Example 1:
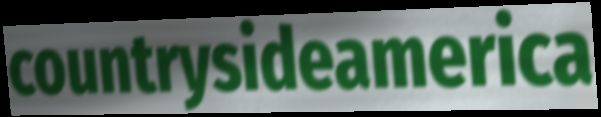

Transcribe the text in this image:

countrysideamerica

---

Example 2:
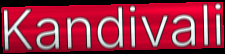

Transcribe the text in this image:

Kandivali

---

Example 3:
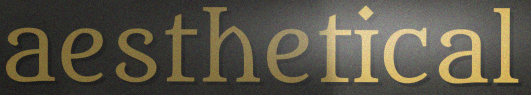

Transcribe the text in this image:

aesthetical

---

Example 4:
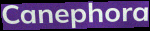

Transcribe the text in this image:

Canephora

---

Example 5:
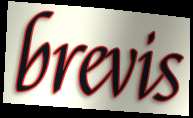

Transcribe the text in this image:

brevis